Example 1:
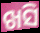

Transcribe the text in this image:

ଖସି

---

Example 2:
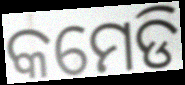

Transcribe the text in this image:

କମେଡି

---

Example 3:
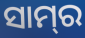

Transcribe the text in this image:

ସାମ୍‌ର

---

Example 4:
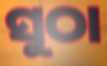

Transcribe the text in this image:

ସୁଠା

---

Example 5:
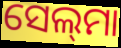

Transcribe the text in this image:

ସେଲ୍‌ମା